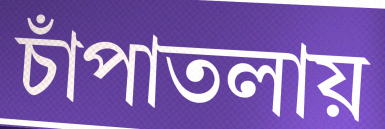
চাঁপাতলায়